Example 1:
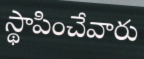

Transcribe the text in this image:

స్థాపించేవారు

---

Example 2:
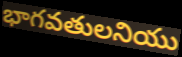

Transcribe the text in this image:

భాగవతులనియు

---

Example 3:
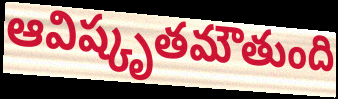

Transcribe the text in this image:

ఆవిష్కృతమౌతుంది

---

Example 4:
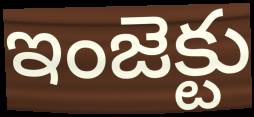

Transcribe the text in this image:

ఇంజెక్టు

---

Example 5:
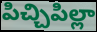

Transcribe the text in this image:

పిచ్చిపిల్లా